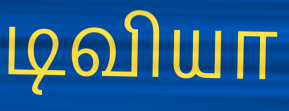
டிவியா